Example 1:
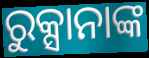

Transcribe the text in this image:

ରୁକ୍ସାନାଙ୍କ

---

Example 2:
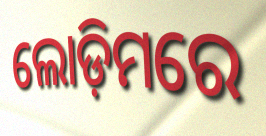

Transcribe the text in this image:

ଲୋଡ଼ିମରେ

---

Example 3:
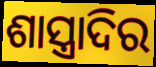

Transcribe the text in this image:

ଶାସ୍ତ୍ରାଦିର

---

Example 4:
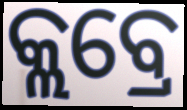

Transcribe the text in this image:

କ୍ଲବ୍ରେ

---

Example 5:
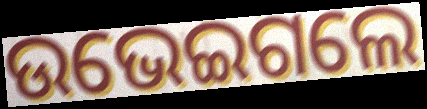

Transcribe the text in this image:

ଉଭେଇଗଲେ